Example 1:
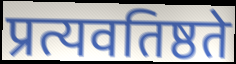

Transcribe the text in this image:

प्रत्यवतिष्ठते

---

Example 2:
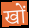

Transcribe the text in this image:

खों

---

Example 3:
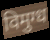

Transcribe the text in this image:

विमुग्ध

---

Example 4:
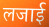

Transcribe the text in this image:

लजाई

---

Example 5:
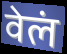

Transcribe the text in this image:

वेलं